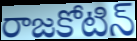
రాజకోటిన్